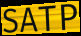
SATP